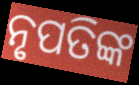
ନୃପତିଙ୍କ